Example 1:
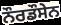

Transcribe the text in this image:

ਨੌਰਡੌਸੇਨ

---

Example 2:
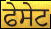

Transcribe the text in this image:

ਫੇਸੇਟ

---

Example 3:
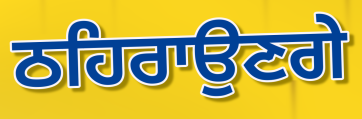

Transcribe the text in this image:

ਠਹਿਰਾਉਣਗੇ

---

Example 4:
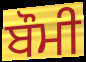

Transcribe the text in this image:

ਬੌਮੀ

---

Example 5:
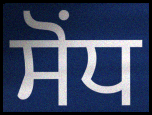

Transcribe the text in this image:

ਸੋਂਧ